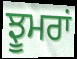
ਝੂਮਰਾਂ